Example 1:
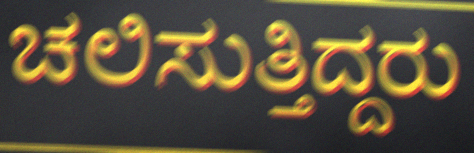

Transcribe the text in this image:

ಚಲಿಸುತ್ತಿದ್ದರು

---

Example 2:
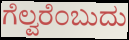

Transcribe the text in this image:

ಗೆಲ್ವರೆಂಬುದು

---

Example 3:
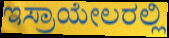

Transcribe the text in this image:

ಇಸ್ರಾಯೇಲರಲ್ಲಿ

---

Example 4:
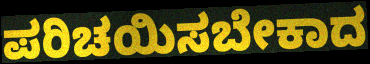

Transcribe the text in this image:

ಪರಿಚಯಿಸಬೇಕಾದ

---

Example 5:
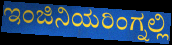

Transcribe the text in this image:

ಇಂಜಿನಿಯರಿಂಗ್ನಲ್ಲಿ